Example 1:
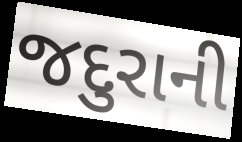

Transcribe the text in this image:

જદુરાની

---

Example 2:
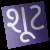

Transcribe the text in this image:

શૂટ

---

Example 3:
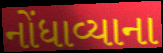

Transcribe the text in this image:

નોંધાવ્યાના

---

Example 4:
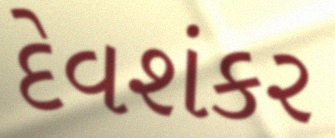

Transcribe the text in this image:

દેવશંકર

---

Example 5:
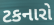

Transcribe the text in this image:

ટકનારો